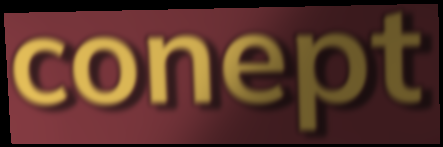
conept